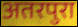
अतरपुरा